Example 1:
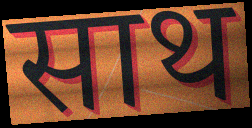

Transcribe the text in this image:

साथ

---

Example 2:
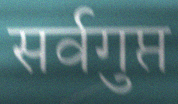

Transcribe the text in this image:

सर्वगुप्त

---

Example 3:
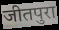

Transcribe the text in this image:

जीतपुरा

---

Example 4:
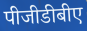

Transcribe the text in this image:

पीजीडीबीए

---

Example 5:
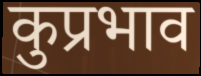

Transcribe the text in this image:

कुप्रभाव